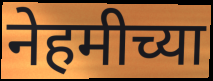
नेहमीच्या